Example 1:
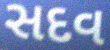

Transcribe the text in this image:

સદવ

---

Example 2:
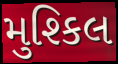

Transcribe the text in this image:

મુશ્કિલ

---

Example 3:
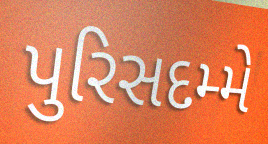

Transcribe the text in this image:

પુરિસદમ્મે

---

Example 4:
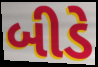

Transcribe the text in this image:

બીડે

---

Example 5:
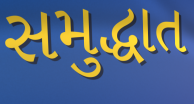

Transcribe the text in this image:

સમુદ્ધાત